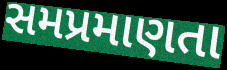
સમપ્રમાણતા